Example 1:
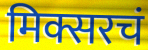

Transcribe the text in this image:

मिक्सरचं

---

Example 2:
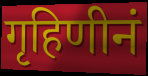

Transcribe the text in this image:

गृहिणीनं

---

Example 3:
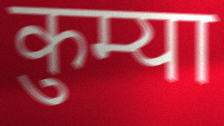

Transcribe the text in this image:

कुम्या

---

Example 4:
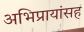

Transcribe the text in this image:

अभिप्रायांसह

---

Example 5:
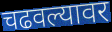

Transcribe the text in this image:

चढवल्यावर